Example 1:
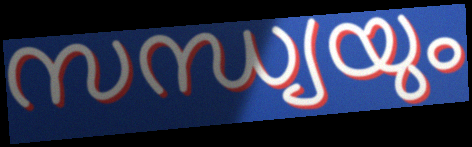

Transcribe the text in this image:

സന്ധ്യയും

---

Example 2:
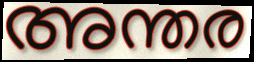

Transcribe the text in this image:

അന്തര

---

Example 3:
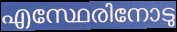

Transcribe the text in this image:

എസ്ഥേരിനോടു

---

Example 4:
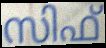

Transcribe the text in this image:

സിഫ്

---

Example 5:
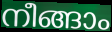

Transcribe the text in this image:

നീങ്ങാം